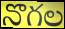
నొగల